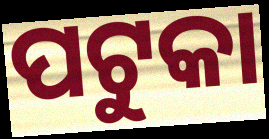
ପଟୁକା